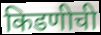
किडणीची